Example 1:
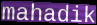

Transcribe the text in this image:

mahadik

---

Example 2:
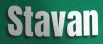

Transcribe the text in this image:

Stavan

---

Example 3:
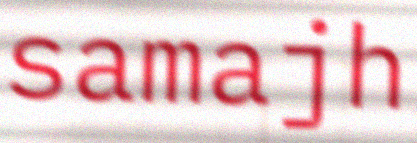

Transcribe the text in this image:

samajh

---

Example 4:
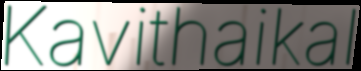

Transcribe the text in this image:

Kavithaikal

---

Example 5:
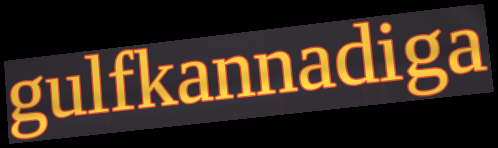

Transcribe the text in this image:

gulfkannadiga